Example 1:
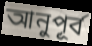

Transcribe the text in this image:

আনুপূর্ব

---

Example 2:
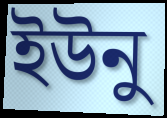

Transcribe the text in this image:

ইউনু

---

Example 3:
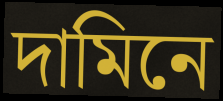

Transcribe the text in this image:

দামিনে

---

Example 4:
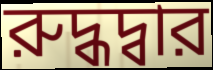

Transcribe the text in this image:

রুদ্ধদ্বার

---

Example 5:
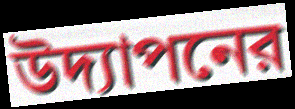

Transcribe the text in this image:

উদ্যাপনের